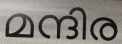
മന്ദിര